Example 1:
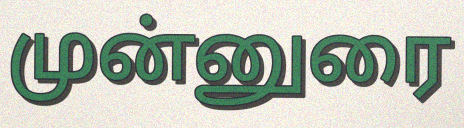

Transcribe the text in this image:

முன்னுரை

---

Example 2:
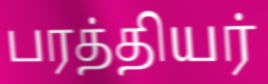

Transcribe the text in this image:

பரத்தியர்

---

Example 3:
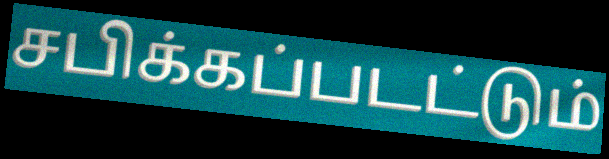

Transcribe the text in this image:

சபிக்கப்படட்டும்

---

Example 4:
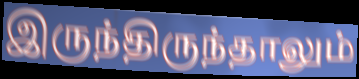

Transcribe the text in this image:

இருந்திருந்தாலும்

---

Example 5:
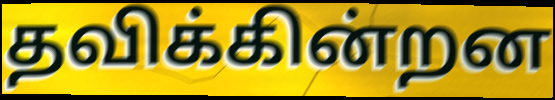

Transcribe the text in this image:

தவிக்கின்றன